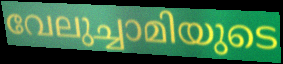
വേലുച്ചാമിയുടെ